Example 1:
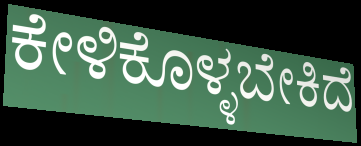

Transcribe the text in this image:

ಕೇಳಿಕೊಳ್ಳಬೇಕಿದೆ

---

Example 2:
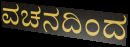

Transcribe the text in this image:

ವಚನದಿಂದ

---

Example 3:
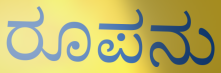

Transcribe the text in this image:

ರೂಪನು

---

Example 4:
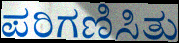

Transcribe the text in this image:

ಪರಿಗಣಿಸಿತು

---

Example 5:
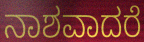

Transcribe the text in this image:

ನಾಶವಾದರೆ